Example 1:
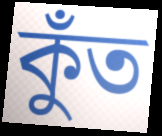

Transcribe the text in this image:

কুঁত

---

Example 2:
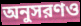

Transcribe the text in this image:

অনুসরণও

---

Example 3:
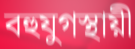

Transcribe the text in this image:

বহুযুগস্থায়ী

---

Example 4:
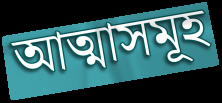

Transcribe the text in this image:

আত্মাসমূহ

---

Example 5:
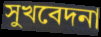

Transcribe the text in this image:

সুখবেদনা